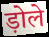
ड़ोले